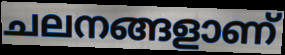
ചലനങ്ങളാണ്